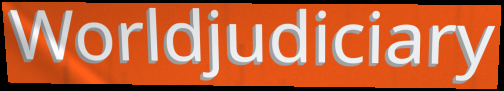
Worldjudiciary